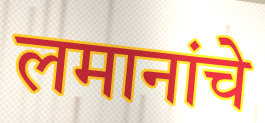
लमानांचे